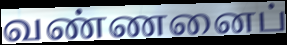
வண்ணனைப்